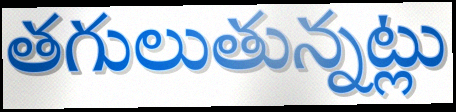
తగులుతున్నట్లు